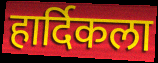
हार्दिकला